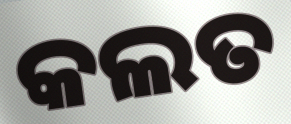
କଲତ